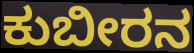
ಕುಬೀರನ